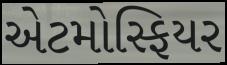
એટમોસ્ફિયર